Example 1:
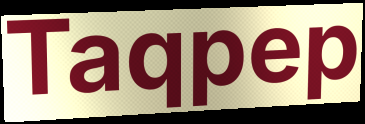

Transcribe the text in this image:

Taqpep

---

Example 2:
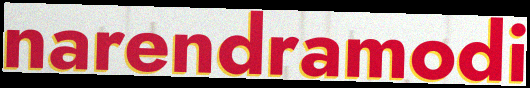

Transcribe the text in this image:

narendramodi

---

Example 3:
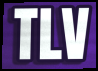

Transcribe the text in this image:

TLV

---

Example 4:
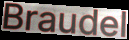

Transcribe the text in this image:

Braudel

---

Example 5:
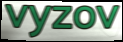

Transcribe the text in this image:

vyzov